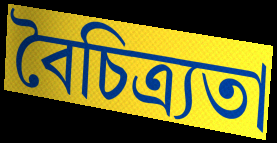
বৈচিত্ৰ্যতা